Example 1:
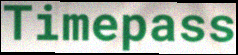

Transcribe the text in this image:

Timepass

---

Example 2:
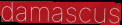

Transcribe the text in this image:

damascus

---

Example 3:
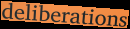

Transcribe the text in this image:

deliberations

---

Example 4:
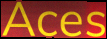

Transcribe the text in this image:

Aces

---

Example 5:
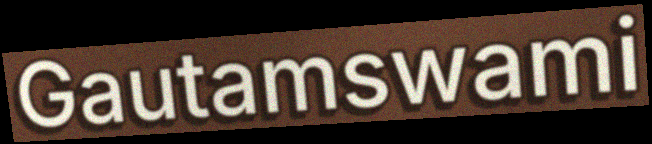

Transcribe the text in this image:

Gautamswami